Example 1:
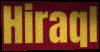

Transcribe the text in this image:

Hiraql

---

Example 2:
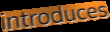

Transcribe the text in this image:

introduces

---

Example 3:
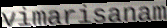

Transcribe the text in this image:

vimarisanam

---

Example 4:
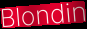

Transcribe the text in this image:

Blondin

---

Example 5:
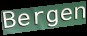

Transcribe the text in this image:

Bergen